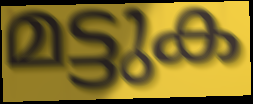
മട്ടുക